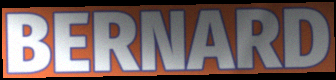
BERNARD